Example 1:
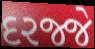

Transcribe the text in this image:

દરજ્જે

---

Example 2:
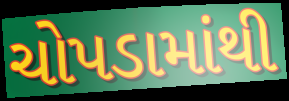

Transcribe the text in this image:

ચોપડામાંથી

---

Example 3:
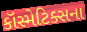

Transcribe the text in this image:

કૉસ્મેટિક્સના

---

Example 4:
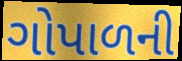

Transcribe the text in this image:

ગોપાળની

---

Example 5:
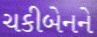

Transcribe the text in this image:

ચકીબેનને